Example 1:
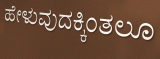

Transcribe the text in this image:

ಹೇಳುವುದಕ್ಕಿಂತಲೂ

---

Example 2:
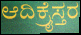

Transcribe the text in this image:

ಆದಿಕ್ರೈಸ್ತರ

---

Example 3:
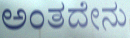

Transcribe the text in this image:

ಅಂತದೇನು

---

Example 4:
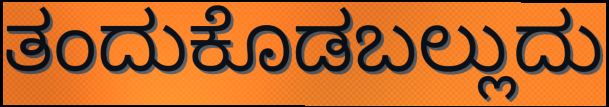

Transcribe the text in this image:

ತಂದುಕೊಡಬಲ್ಲುದು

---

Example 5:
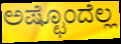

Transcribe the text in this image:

ಅಷ್ಟೊಂದೆಲ್ಲ